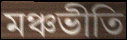
মঞ্চভীতি